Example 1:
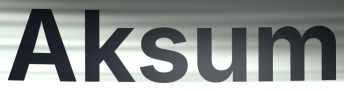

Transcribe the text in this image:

Aksum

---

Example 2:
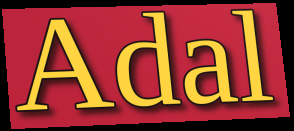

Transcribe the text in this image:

Adal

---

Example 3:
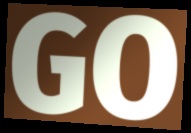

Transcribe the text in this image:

GO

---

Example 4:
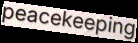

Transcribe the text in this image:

peacekeeping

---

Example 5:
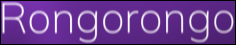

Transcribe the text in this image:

Rongorongo